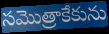
సమొత్రాకేకును